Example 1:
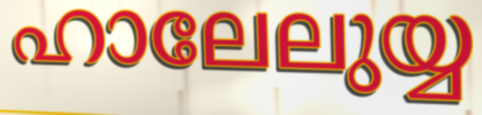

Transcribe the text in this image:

ഹാലേലുയ്യ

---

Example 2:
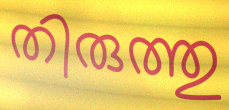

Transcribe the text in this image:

തിരുത്തു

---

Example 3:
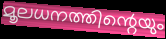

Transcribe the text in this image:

മൂലധനത്തിന്റെയും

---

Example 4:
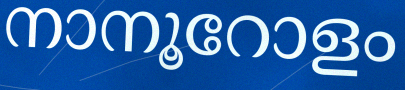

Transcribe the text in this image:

നാനൂറോളം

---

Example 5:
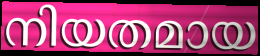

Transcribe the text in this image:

നിയതമായ